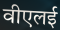
वीएलई